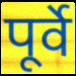
पूर्वे